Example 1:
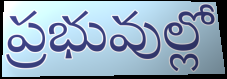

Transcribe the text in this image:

ప్రభువుల్లో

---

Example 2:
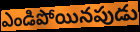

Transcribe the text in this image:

ఎండిపోయినపుడు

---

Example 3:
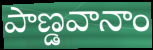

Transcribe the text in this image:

పాణ్డవానాం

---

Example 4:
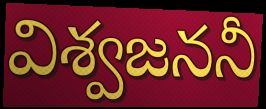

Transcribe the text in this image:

విశ్వజననీ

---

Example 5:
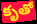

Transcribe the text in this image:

కృతో